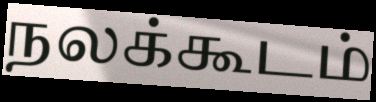
நலக்கூடம்